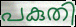
പകുതി